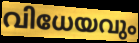
വിധേയവും